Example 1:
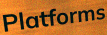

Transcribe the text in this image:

Platforms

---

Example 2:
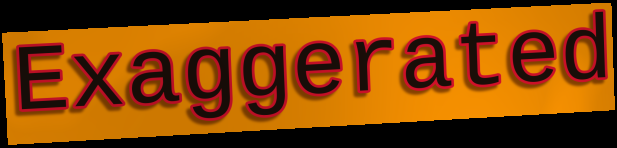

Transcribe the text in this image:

Exaggerated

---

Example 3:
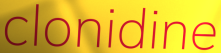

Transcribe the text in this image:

clonidine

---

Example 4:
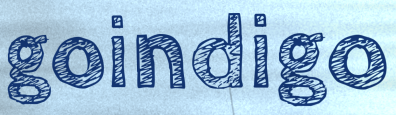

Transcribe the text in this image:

goindigo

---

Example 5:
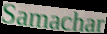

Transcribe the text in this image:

Samachar